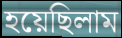
হয়েছিলাম